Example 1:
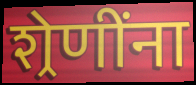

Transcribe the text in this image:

श्रेणींना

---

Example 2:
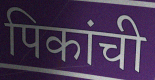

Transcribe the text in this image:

पिकांची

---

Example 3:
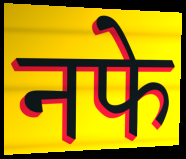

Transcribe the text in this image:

नफे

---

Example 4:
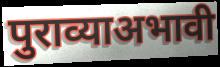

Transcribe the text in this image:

पुराव्याअभावी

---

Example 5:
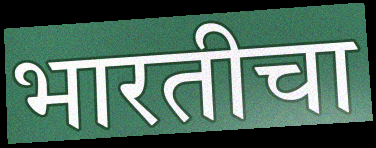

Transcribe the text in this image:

भारतीचा